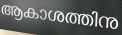
ആകാശത്തിനു